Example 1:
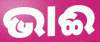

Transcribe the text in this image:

ଭାଈ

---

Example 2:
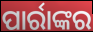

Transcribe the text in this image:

ପାର୍ରାଙ୍କର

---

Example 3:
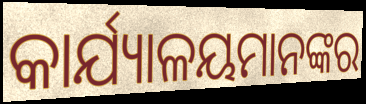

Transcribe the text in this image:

କାର୍ଯ୍ୟାଳୟମାନଙ୍କର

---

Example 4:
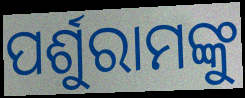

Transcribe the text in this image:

ପର୍ଶୁରାମଙ୍କୁ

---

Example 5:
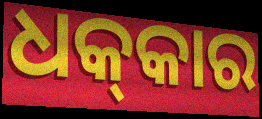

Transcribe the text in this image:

ଧକ୍‍କାର